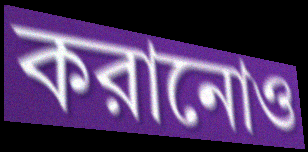
করানোও